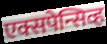
एक्सपेन्सिव्ह